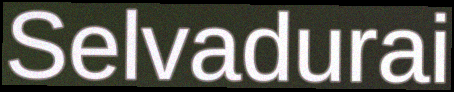
Selvadurai